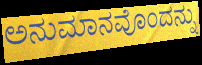
ಅನುಮಾನವೊಂದನ್ನು